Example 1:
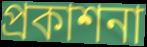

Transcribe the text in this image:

প্রকাশনা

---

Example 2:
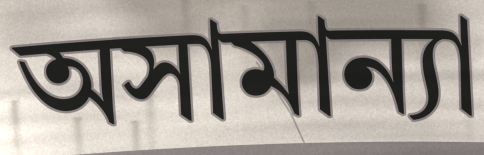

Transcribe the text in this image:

অসামান্যা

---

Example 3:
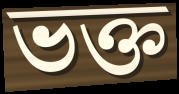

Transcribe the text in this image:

ভক্ত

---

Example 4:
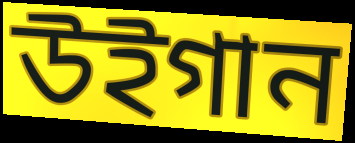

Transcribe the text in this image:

উইগান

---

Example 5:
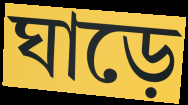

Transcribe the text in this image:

ঘাড়ে